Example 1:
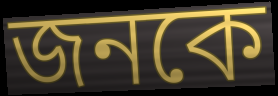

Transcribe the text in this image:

জনকে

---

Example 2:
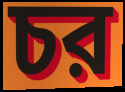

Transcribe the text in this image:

চর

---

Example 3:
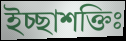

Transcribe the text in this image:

ইচ্ছাশক্তিঃ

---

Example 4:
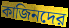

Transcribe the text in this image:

কাজিনদের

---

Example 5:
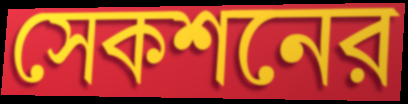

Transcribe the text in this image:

সেকশনের